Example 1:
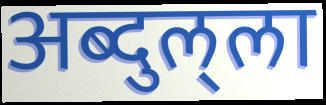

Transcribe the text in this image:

अब्दुल्ला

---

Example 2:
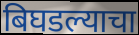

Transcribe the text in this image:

बिघडल्याचा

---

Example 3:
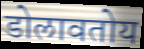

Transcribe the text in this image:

डोलावतोय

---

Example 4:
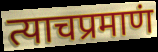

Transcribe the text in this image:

त्याचप्रमाणं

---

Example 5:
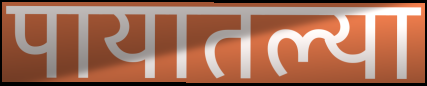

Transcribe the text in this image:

पायातल्या